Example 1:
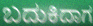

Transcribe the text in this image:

ಬದುಕಿದಾಗ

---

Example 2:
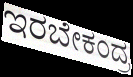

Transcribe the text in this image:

ಇರಬೇಕಂದ್ರ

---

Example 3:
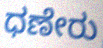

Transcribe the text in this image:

ಧಣೇರು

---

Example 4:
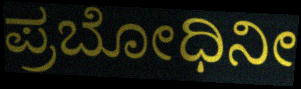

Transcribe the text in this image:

ಪ್ರಬೋಧಿನೀ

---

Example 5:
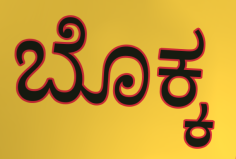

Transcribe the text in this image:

ಬೊಕ್ಕ